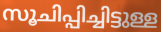
സൂചിപ്പിച്ചിട്ടുള്ള